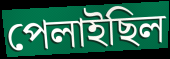
পেলাইছিল